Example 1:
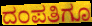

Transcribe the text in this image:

ದಂಪತಿಗೂ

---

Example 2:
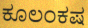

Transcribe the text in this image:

ಕೂಲಂಕಷ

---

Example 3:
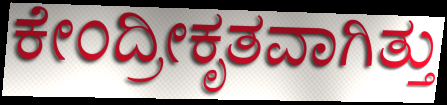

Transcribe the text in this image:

ಕೇಂದ್ರೀಕೃತವಾಗಿತ್ತು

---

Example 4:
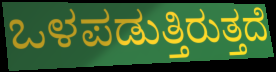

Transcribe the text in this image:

ಒಳಪಡುತ್ತಿರುತ್ತದೆ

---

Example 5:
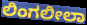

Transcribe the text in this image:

ಲಿಂಗಲೀಲಾ